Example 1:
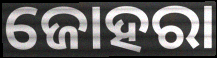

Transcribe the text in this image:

ଜୋହରା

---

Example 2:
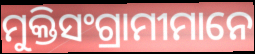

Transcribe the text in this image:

ମୁକ୍ତିସଂଗ୍ରାମୀମାନେ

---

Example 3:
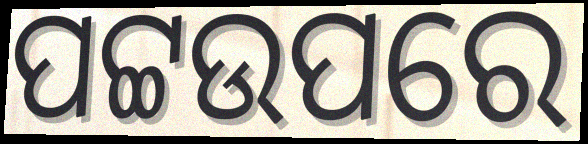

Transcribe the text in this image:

ପଟ୍ଟଉପରେ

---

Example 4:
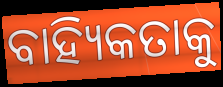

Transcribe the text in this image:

ବାହ୍ୟିକତାକୁ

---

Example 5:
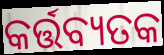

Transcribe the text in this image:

କର୍ତ୍ତବ୍ୟତକ